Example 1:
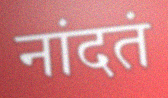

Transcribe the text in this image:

नांदतं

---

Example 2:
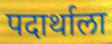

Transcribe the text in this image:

पदार्थाला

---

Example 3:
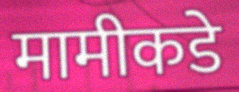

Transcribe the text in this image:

मामीकडे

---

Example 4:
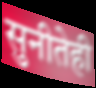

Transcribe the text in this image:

सुनीतेही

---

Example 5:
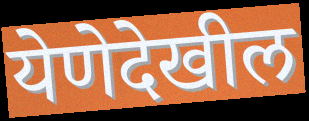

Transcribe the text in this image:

येणेदेखील